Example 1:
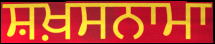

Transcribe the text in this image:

ਸ਼ਖ਼ਸਨਾਮਾ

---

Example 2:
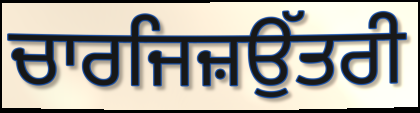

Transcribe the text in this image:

ਚਾਰਜਿਜ਼ਉੱਤਰੀ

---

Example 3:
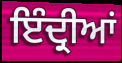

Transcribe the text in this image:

ਇੰਦ੍ਰੀਆਂ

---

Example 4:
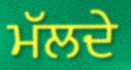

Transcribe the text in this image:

ਮੱਲਦੇ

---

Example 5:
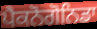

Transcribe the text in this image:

ਪੈਕਨੋਗੋਨਿਡਾ